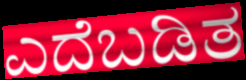
ಎದೆಬಡಿತ